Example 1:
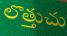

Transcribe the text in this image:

లొత్తుచు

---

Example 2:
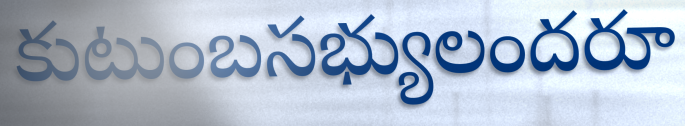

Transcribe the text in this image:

కుటుంబసభ్యులందరూ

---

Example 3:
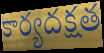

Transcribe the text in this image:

కార్యదక్షత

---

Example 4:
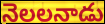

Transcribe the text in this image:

నెలలనాడు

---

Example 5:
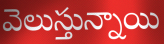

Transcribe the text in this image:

వెలుస్తున్నాయి